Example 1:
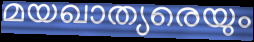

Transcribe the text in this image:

മയഖാത്യരെയും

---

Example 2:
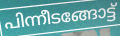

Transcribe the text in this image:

പിന്നീടങ്ങോട്ട്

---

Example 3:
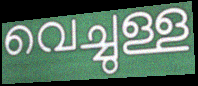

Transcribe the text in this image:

വെച്ചുള്ള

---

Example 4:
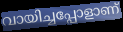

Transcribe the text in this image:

വായിച്ചപ്പോളാണ്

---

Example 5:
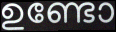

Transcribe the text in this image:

ഉണ്ടോ